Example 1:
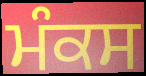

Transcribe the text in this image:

ਮੰਕਸ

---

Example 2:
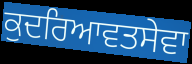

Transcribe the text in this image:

ਕੁਦਰਿਆਵਤਸੇਵਾ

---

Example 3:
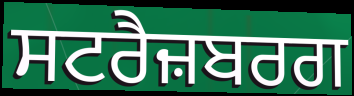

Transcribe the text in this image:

ਸਟਰੈਜ਼ਬਰਗ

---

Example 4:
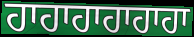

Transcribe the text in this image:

ਹਾਹਾਹਾਹਾਹਾਹਾ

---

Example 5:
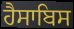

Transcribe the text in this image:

ਹੈਸਾਬਿਸ